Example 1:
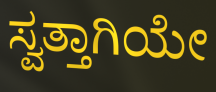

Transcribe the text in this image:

ಸ್ವತ್ತಾಗಿಯೇ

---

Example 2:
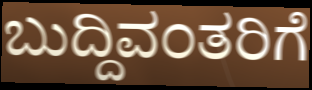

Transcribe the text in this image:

ಬುದ್ದಿವಂತರಿಗೆ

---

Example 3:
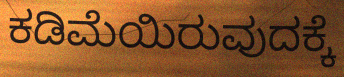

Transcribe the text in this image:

ಕಡಿಮೆಯಿರುವುದಕ್ಕೆ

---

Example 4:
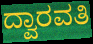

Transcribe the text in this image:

ದ್ವಾರವತಿ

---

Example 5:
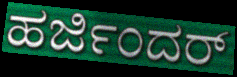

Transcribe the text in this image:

ಹರ್ಜಿಂದರ್